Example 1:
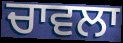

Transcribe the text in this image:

ਚਾਵਲਾ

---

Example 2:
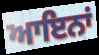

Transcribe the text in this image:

ਆਇਨਾਂ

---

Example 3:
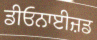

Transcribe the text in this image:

ਡੀਓਨਾਈਜ਼ਡ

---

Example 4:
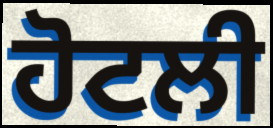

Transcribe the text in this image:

ਹੋਟਲੀ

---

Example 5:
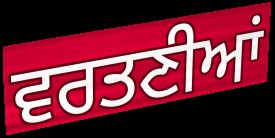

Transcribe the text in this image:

ਵਰਤਣੀਆਂ